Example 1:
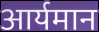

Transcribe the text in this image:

आर्यमान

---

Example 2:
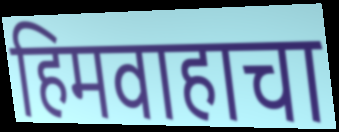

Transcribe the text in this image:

हिमवाहाचा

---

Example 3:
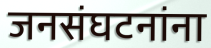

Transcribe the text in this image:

जनसंघटनांना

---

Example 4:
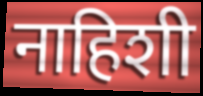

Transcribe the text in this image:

नाहिशी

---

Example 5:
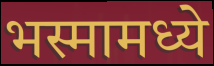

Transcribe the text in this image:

भस्मामध्ये